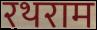
रथराम